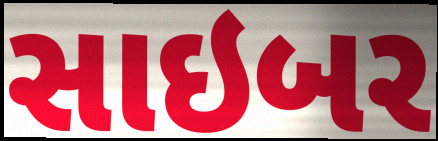
સાઇબર